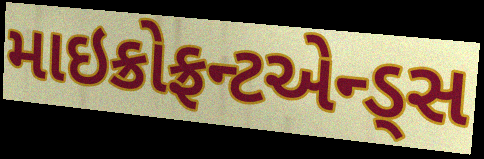
માઇક્રોફ્રન્ટએન્ડ્સ